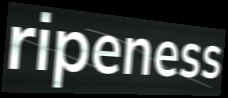
ripeness